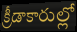
క్రీడాకారుల్లో